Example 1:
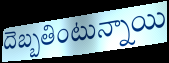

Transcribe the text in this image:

దెబ్బతింటున్నాయి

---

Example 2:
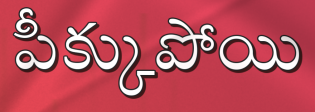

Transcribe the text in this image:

పీక్కుపోయి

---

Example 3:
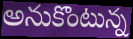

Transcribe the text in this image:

అనుకొంటున్న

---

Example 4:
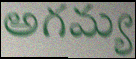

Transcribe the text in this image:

అగమ్య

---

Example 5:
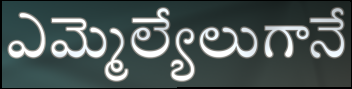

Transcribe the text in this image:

ఎమ్మెల్యేలుగానే